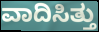
ವಾದಿಸಿತ್ತು